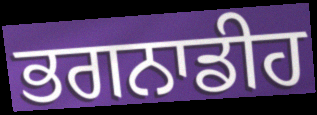
ਭਗਨਾਡੀਹ